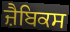
ਜ਼ੈਬਿਕਸ